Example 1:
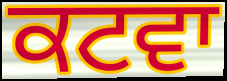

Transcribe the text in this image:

ਕਟਵਾ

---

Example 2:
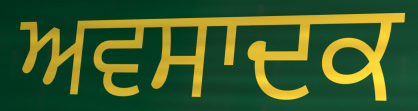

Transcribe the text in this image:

ਅਵਸਾਦਕ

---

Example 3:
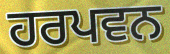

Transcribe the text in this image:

ਹਰਪਵਨ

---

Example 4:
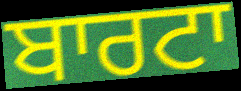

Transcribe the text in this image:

ਬਾਰਟਾ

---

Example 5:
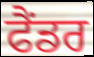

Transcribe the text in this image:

ਫੈਂਡਰ